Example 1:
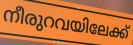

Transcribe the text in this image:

നീരുറവയിലേക്ക്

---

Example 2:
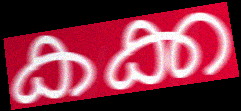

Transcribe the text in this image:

കക്ക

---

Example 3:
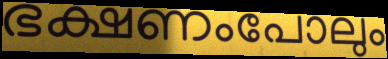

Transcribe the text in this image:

ഭക്ഷണംപോലും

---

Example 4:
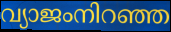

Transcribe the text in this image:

വ്യാജംനിറഞ്ഞ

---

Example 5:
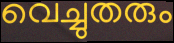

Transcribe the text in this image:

വെച്ചുതരും